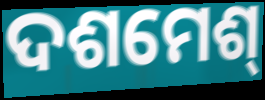
ଦଶମେଶ୍